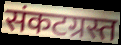
संकटग्रस्त